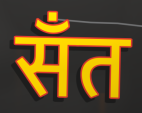
सँत